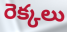
రెక్కలు